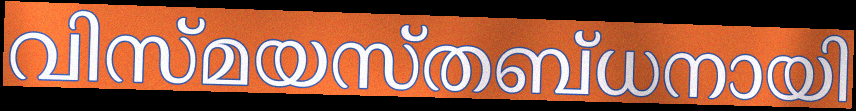
വിസ്മയസ്തബ്ധനായി